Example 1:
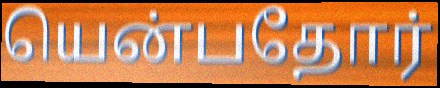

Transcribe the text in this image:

யென்பதோர்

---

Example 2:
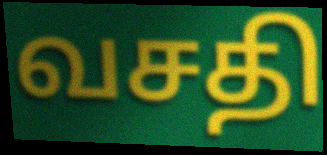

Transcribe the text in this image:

வசதி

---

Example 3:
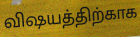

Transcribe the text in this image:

விஷயத்திற்காக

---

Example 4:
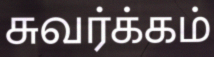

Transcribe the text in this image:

சுவர்க்கம்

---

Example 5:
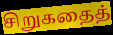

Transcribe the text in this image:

சிறுகதைத்